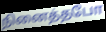
நினைத்தபோ